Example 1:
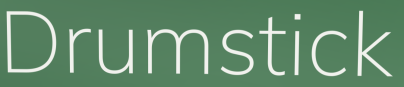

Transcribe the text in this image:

Drumstick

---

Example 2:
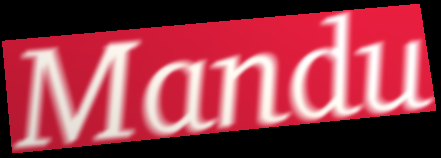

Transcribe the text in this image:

Mandu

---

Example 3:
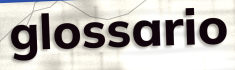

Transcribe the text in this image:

glossario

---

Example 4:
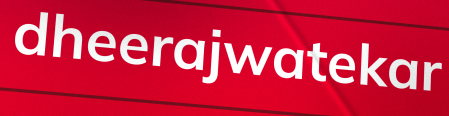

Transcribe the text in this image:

dheerajwatekar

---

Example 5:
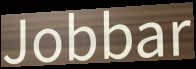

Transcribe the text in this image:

Jobbar